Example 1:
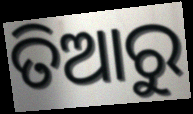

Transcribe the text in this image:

ତିଆରୁ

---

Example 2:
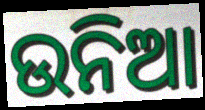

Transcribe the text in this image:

ଉନିଆ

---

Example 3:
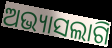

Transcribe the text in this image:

ଅଭ୍ୟାସଲାଗି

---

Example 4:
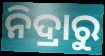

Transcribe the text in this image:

ନିଦ୍ରାରୁ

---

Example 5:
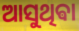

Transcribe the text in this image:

ଆସୁଥିଵା